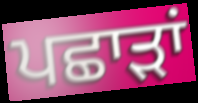
ਪਛਾੜਾਂ